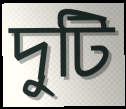
দুটি